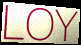
LOY